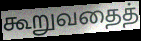
கூறுவதைத்